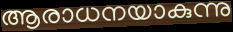
ആരാധനയാകുന്നു